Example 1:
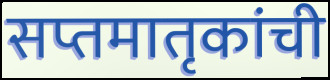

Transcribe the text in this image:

सप्तमातृकांची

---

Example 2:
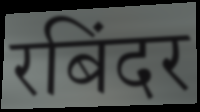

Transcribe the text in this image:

रबिंदर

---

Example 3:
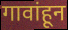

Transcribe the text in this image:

गावांहून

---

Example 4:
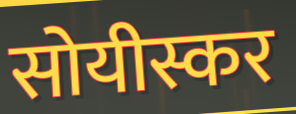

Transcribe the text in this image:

सोयीस्कर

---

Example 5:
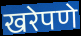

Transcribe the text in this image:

खरेपणे